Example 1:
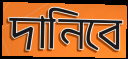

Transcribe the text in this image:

দানিবে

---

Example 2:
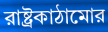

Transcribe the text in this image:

রাষ্ট্রকাঠামোর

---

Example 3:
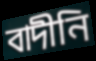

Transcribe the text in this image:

বাদীনি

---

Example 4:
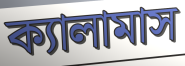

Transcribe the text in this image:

ক্যালামাস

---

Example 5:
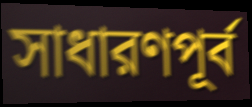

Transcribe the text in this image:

সাধারণপূর্ব